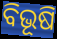
ବିଭୂଷି